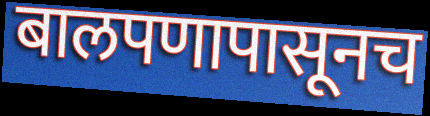
बालपणापासूनच